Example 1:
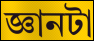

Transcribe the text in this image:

জ্ঞানটা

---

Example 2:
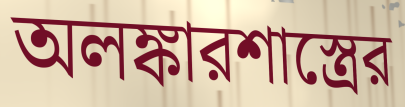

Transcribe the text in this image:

অলঙ্কারশাস্ত্রের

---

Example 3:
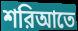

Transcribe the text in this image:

শরিআতে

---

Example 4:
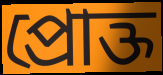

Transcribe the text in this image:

প্রোক্ত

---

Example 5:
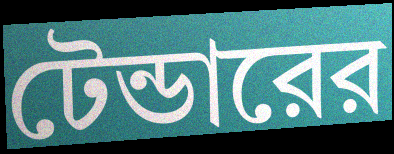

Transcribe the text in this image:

টেন্ডারের